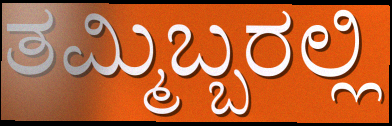
ತಮ್ಮಿಬ್ಬರಲ್ಲಿ